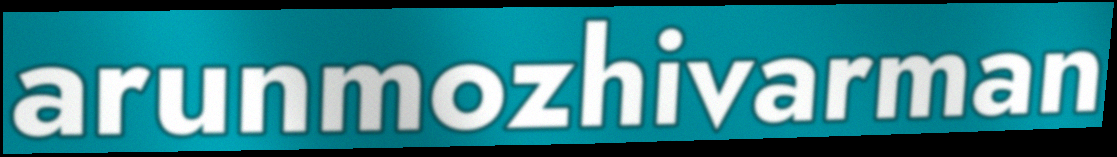
arunmozhivarman